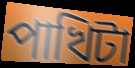
পাখিটা